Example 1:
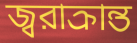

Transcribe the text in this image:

জ্বরাক্রান্ত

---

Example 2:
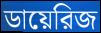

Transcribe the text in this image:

ডায়েরিজ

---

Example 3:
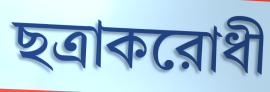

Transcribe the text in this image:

ছত্রাকরোধী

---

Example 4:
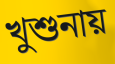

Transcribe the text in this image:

খুশুনায়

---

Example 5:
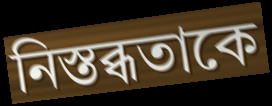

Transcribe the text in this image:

নিস্তব্ধতাকে